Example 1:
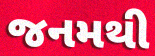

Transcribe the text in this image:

જનમથી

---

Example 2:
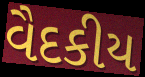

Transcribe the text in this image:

વૈદકીય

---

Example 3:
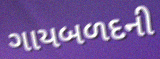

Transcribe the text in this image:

ગાયબળદની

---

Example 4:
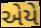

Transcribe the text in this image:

એયે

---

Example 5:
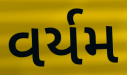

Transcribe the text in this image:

વર્યમ